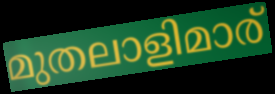
മുതലാളിമാര്